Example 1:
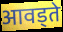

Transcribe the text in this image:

आवड्ते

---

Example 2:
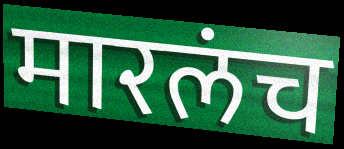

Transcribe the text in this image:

मारलंच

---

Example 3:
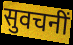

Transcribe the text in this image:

सुवचनीं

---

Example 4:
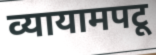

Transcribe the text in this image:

व्यायामपटू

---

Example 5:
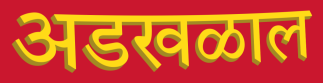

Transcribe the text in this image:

अडखळाल